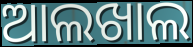
ଆଲଖାଲ